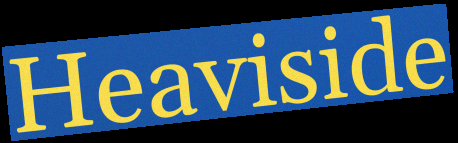
Heaviside